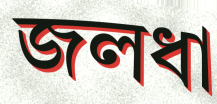
জলধা